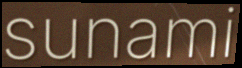
sunami